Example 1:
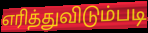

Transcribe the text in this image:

எரித்துவிடும்படி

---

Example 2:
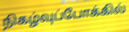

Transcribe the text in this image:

நிகழ்வுப்போக்கில்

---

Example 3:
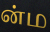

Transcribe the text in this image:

ன்ம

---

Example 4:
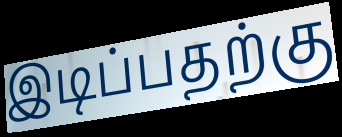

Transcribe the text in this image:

இடிப்பதற்கு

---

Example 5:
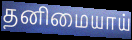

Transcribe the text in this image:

தனிமையாய்